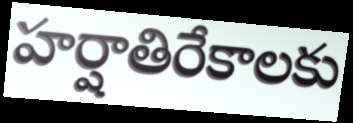
హర్షాతిరేకాలకు